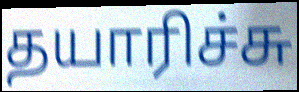
தயாரிச்சு